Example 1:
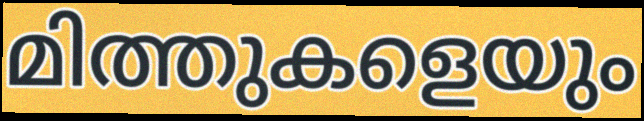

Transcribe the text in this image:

മിത്തുകളെയും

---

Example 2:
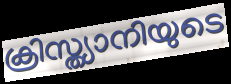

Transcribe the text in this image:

ക്രിസ്ത്യാനിയുടെ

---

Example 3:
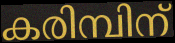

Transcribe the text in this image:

കരിമ്പിന്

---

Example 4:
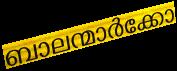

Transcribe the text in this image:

ബാലന്മാർക്കോ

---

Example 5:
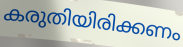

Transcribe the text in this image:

കരുതിയിരിക്കണം